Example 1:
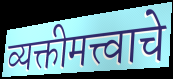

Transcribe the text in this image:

व्यक्तीमत्त्वाचे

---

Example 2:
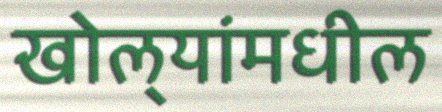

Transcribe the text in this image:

खोल्यांमधील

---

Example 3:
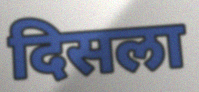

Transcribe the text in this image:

दिसला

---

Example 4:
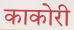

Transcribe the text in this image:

काकोरी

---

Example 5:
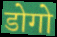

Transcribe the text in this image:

डोगो